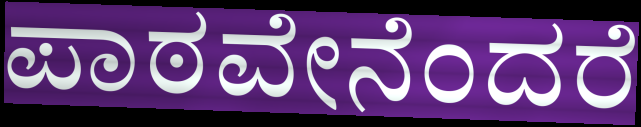
ಪಾಠವೇನೆಂದರೆ